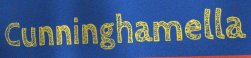
Cunninghamella